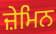
ਜ਼ੇਮਿਨ